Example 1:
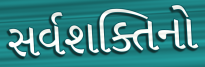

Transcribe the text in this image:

સર્વશક્તિનો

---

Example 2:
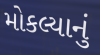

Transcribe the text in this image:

મોકલ્યાનું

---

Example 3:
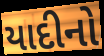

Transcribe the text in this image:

યાદીનો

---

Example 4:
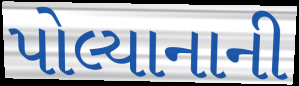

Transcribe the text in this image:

પોલ્યાનાની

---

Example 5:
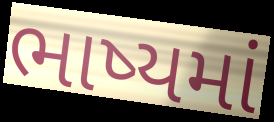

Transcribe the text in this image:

ભાષ્યમાં